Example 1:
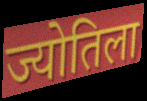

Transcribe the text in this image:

ज्योतिला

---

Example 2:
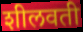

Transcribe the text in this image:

शीलवती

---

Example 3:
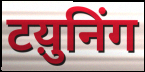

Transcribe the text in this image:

टय़ुनिंग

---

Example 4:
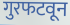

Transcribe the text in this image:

गुरफटवून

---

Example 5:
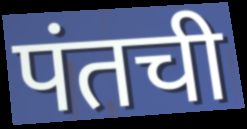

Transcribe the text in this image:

पंतची